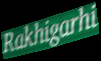
Rakhigarhi